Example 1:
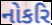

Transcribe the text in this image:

નોકરિ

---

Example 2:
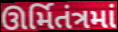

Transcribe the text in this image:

ઊર્મિતંત્રમાં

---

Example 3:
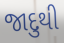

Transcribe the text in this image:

જાદુથી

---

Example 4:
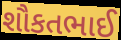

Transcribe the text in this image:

શૌકતભાઈ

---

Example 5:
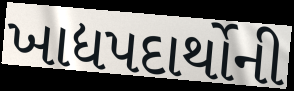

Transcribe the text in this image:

ખાદ્યપદાર્થોની